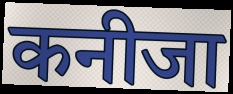
कनीजा